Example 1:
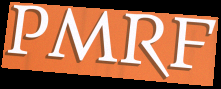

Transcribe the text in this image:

PMRF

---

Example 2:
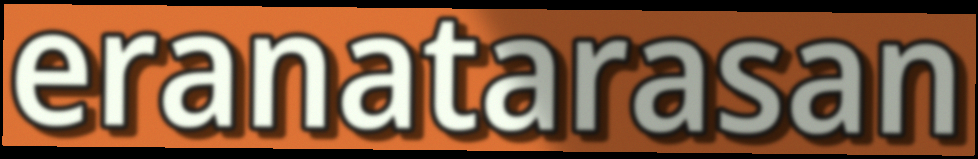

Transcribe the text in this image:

eranatarasan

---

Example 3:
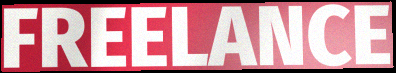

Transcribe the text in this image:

FREELANCE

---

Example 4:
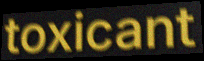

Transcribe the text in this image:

toxicant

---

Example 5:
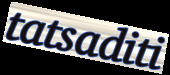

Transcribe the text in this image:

tatsaditi